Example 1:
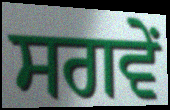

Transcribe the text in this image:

ਸਗਵੇਂ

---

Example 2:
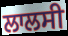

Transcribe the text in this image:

ਲਾਲਸੀ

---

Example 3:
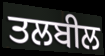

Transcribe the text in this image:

ਤਲਬੀਲ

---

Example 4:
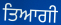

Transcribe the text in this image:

ਤਿਆਗੀ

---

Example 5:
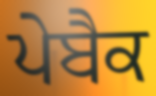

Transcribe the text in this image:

ਪੇਬੈਕ